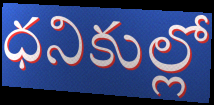
ధనికుల్లో